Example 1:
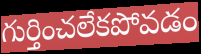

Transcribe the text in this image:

గుర్తించలేకపోవడం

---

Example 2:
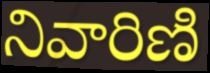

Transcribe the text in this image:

నివారిణి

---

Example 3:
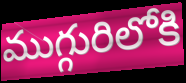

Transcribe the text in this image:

ముగ్గురిలోకి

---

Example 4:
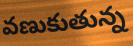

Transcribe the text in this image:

వణుకుతున్న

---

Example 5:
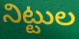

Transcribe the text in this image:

నిట్టుల